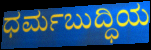
ಧರ್ಮಬುದ್ಧಿಯ